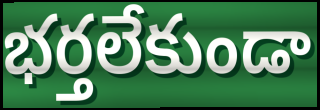
భర్తలేకుండా